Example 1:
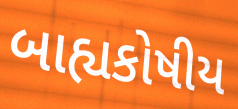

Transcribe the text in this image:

બાહ્યકોષીય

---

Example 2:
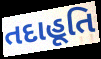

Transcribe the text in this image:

તદાહૂતિ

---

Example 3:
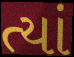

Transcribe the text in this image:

ત્‍યાં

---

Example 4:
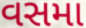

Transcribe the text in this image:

વસમા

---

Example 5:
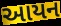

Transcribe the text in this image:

આયન